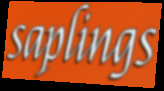
saplings